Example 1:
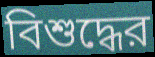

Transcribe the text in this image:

বিশুদ্ধের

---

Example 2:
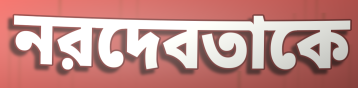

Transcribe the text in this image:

নরদেবতাকে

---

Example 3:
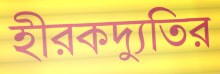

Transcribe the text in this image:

হীরকদ্যুতির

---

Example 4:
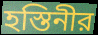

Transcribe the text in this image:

হস্তিনীর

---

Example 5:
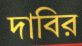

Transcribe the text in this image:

দাবির